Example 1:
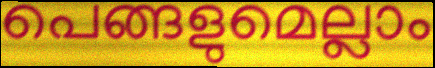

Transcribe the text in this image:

പെങ്ങളുമെല്ലാം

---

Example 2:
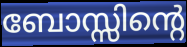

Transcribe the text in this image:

ബോസ്സിന്റെ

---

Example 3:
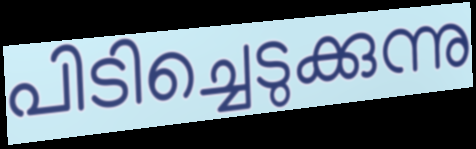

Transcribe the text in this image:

പിടിച്ചെടുക്കുന്നു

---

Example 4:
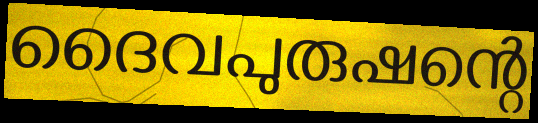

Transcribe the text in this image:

ദൈവപുരുഷന്റെ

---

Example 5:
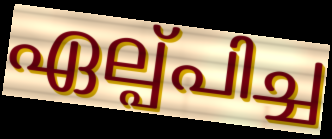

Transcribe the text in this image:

ഏല്പ്പിച്ച